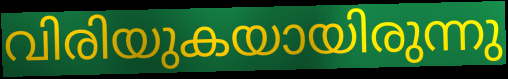
വിരിയുകയായിരുന്നു